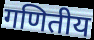
गणितीय